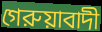
গেরুয়াবাদী